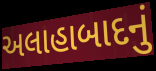
અલાહાબાદનું